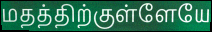
மதத்திற்குள்ளேயே